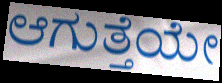
ಆಗುತ್ತೆಯೇ